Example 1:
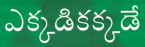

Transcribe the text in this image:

ఎక్కడికక్కడే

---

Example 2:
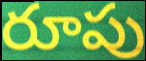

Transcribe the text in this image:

రూపు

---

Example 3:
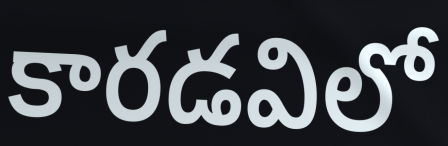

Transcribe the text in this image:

కారడవిలో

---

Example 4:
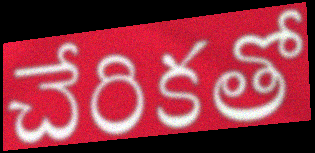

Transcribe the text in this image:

చేరికతో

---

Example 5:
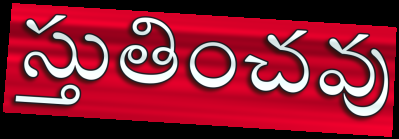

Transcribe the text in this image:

స్తుతించవు